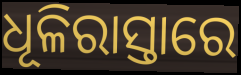
ଧୂଳିରାସ୍ତାରେ